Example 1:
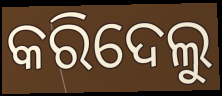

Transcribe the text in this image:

କରିଦେଲୁ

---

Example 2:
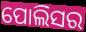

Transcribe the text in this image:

ପୋଲିସର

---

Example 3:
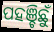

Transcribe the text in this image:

ପହଞ୍ଚିଛୁଁ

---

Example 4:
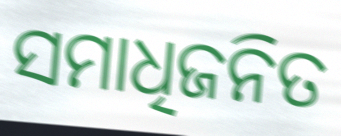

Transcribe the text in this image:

ସମାଧିଜନିତ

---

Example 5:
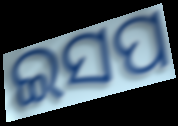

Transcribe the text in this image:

ଇସପ